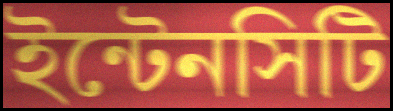
ইন্টেনসিটি